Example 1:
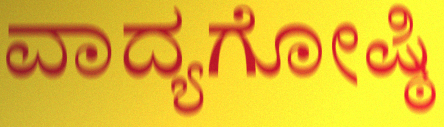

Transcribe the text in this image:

ವಾದ್ಯಗೋಷ್ಠಿ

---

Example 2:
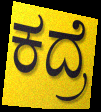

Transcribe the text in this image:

ಕದ್ರೆ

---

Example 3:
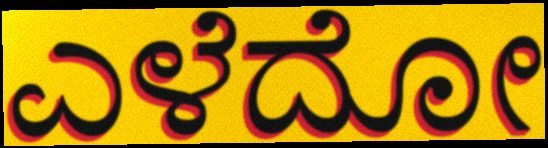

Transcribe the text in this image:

ಎಳೆದೋ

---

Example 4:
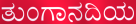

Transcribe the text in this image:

ತುಂಗಾನದಿಯ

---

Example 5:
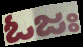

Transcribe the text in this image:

ಓಜಃ